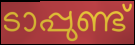
ടാപ്പുണ്ട്